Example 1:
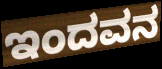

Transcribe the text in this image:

ಇಂದವನ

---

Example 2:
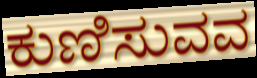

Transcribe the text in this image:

ಕುಣಿಸುವವ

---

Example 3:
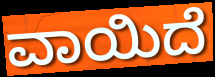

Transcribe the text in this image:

ವಾಯಿದೆ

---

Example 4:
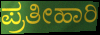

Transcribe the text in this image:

ಪ್ರತೀಹಾರಿ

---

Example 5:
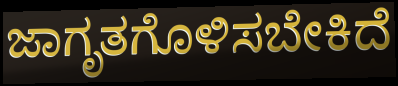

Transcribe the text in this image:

ಜಾಗೃತಗೊಳಿಸಬೇಕಿದೆ